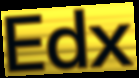
Edx